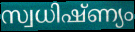
സ്വധിഷ്ണ്യം